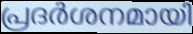
പ്രദർശനമായി